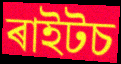
ৰাইটচ